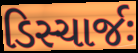
ડિસ્ચાર્જઃ